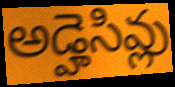
అడ్హెసివ్లు